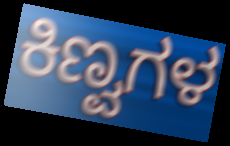
ಕಿಣ್ವಗಳ